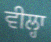
ਵੀਲ੍ਹਾ